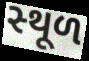
સ્‍થૂળ